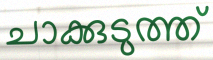
ചാക്കുടുത്ത്